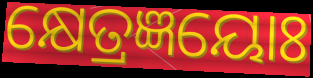
କ୍ଷେତ୍ରଜ୍ଞୟୋଃ